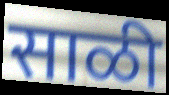
साळी